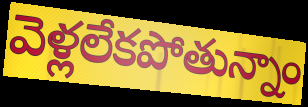
వెళ్లలేకపోతున్నాం